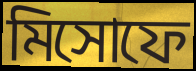
মিসোফে